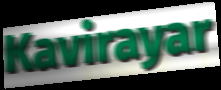
Kavirayar